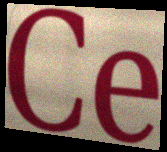
Ce